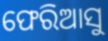
ଫେରିଆସୁ